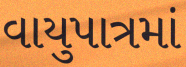
વાયુપાત્રમાં